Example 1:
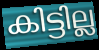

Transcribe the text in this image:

കിട്ടില്ല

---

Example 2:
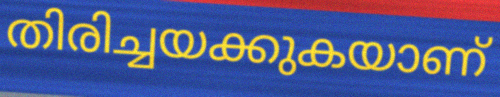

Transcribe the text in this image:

തിരിച്ചയക്കുകയാണ്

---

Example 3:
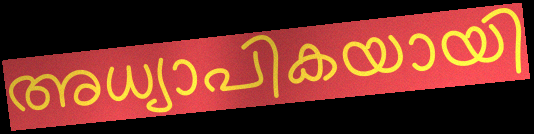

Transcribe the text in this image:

അധ്യാപികയായി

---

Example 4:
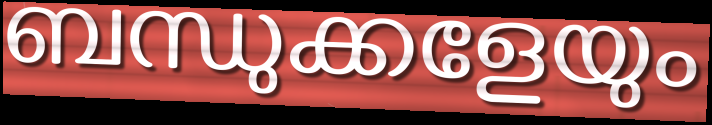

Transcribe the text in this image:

ബന്ധുക്കളേയും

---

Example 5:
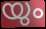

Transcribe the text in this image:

യും